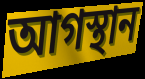
আগস্থান